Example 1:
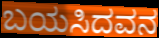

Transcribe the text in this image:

ಬಯಸಿದವನ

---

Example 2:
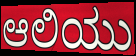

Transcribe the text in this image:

ಆಲಿಯು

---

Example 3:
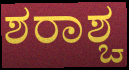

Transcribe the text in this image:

ಶರಾಶ್ಚ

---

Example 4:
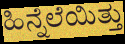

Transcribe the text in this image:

ಹಿನ್ನೆಲೆಯಿತ್ತು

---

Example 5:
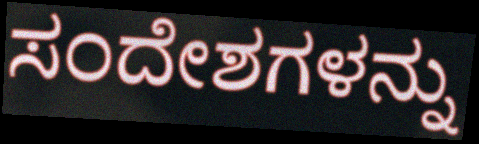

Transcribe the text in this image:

ಸಂದೇಶಗಳನ್ನು